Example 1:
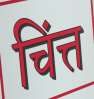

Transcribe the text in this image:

चिंत्त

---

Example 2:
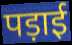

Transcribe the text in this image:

पड़ाई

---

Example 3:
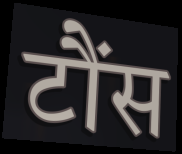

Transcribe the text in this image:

टौंस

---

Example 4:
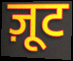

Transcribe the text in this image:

ज़ूट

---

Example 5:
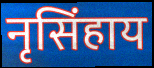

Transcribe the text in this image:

नृसिंहाय